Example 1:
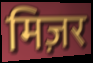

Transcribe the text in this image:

मिज़र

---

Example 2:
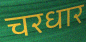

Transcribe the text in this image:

चरधार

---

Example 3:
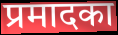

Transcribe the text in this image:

प्रमादका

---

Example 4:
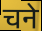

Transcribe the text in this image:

चने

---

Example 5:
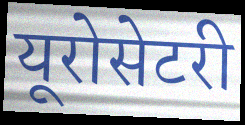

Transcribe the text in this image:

यूरोसेटरी